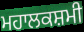
ਮਹਾਲਕਸ਼ਮੀ